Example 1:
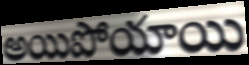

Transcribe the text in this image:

అయిపోయాయి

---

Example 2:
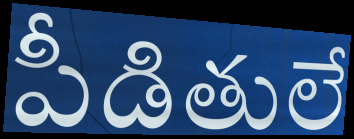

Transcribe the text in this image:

పీడితులే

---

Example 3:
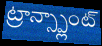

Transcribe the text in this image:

ట్రాన్స్ప్లాంట్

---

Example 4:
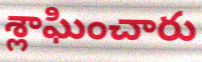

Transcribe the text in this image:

శ్లాఘించారు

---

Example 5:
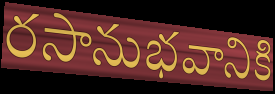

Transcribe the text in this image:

రసానుభవానికి